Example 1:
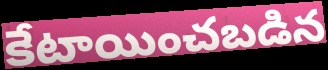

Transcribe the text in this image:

కేటాయించబడిన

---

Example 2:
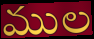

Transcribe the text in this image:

ముల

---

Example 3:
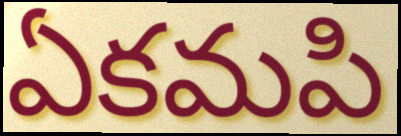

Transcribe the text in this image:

ఏకమపి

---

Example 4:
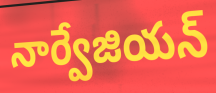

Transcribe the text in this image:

నార్వేజియన్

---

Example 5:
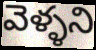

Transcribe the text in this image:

వెళ్ళని